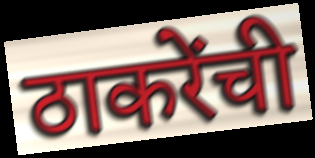
ठाकरेंची